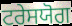
ਟਰੇਸਯੋਗ